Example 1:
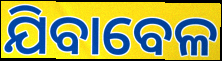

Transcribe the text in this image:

ଯିବାବେଳ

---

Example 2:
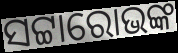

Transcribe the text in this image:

ସଟ୍ଟାରୋଭଙ୍କ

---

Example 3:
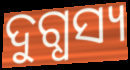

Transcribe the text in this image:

ଦୁଗ୍ଧସ୍ୟ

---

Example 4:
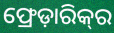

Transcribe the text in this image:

ଫ୍ରେଡ଼ାରିକ୍‍ର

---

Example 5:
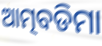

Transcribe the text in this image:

ଆତ୍ମବଡିମା